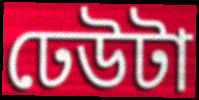
ঢেউটা